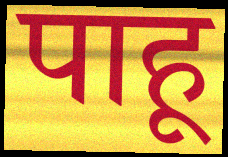
पाहू